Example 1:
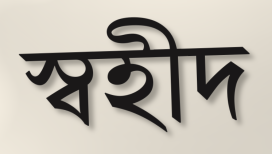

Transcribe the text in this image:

স্বহীদ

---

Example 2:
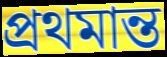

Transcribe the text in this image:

প্ৰথমান্ত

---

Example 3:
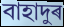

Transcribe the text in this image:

বাহাদুৰ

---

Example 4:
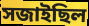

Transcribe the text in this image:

সজাইছিল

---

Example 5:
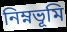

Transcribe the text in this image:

নিম্নভূমি